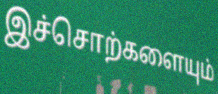
இச்சொற்களையும்